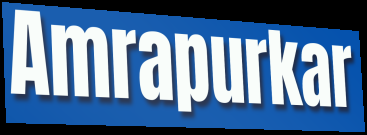
Amrapurkar